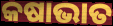
କଷାଭାତ